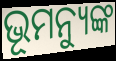
ଭୂମନ୍ୟୁଙ୍କ